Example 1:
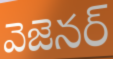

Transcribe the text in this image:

వెజెనర్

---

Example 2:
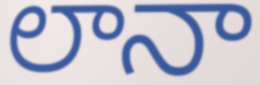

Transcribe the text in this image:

లానా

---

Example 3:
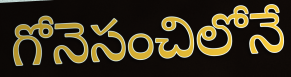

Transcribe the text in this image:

గోనెసంచిలోనే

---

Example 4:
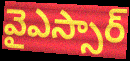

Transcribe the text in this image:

వైఎస్సార్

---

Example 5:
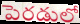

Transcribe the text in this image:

పెరడులో